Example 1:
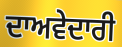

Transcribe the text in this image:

ਦਾਅਵੇਦਾਰੀ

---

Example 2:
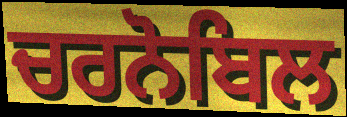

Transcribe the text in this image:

ਚਰਨੋਬਿਲ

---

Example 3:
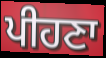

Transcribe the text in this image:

ਪੀਹਣਾ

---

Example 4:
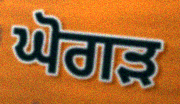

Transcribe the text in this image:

ਘੋਗੜ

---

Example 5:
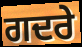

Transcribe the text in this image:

ਗਦਰੇ